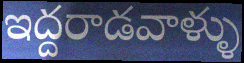
ఇద్దరాడవాళ్ళు